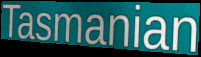
Tasmanian